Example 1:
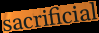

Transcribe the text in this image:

sacrificial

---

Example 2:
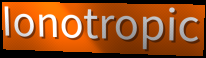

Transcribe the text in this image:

Ionotropic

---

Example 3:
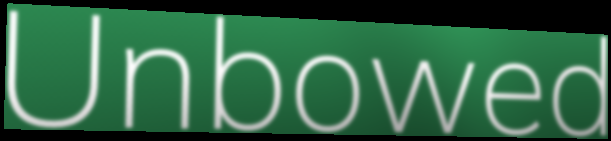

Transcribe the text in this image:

Unbowed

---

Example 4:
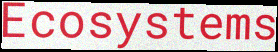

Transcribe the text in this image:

Ecosystems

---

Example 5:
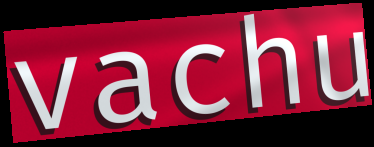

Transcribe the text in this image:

vachu